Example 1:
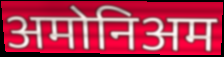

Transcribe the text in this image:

अमोनिअम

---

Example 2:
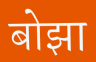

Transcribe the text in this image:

बोझा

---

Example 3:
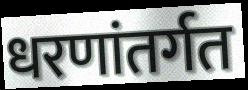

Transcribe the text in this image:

धरणांतर्गत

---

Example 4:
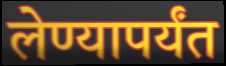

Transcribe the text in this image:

लेण्यापर्यंत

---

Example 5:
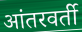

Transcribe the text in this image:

आंतरवर्ती